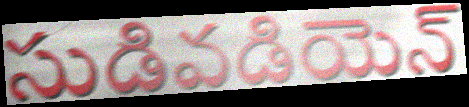
సుడివడియెన్